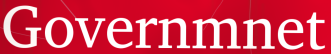
Governmnet